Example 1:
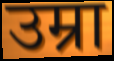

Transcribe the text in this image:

उम्रा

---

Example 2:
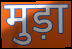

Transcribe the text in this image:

मुड़ा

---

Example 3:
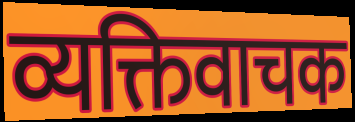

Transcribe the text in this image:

व्यक्तिवाचक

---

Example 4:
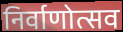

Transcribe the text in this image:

निर्वाणोत्सव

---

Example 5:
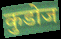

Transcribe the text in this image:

कुडोज